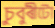
চুবুৰীটো